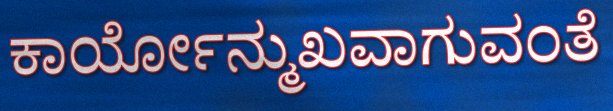
ಕಾರ್ಯೋನ್ಮುಖವಾಗುವಂತೆ